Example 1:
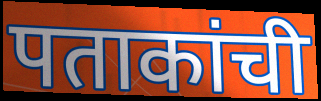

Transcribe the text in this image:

पताकांची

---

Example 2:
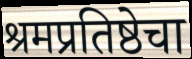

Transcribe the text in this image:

श्रमप्रतिष्ठेचा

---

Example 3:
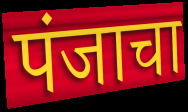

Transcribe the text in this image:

पंजाचा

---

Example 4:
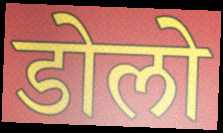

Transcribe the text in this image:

डोलो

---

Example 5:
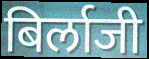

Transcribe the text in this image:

बिर्लाजी